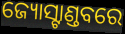
ଜ୍ୟୋସ୍ଟାଣ୍ଡବରେ